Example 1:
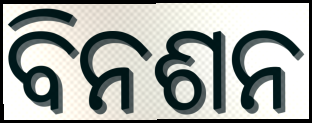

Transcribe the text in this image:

ବିନଶନ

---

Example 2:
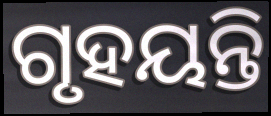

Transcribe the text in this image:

ଗୃହୟନ୍ତି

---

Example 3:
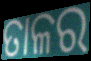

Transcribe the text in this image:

ତାଳର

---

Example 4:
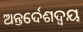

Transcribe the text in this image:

ଅନ୍ତର୍ଦେଶଦ୍ଵୟ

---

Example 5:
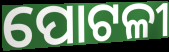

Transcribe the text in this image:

ପୋଟଳୀ